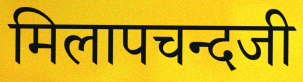
मिलापचन्दजी